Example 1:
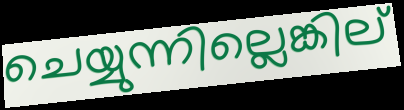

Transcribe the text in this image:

ചെയ്യുന്നില്ലെങ്കില്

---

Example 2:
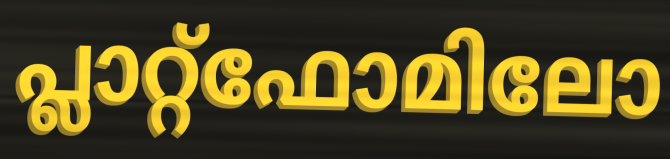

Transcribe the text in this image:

പ്ലാറ്റ്ഫോമിലോ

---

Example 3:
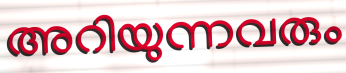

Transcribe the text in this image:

അറിയുന്നവരും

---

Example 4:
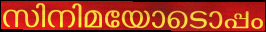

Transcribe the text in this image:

സിനിമയോടൊപ്പം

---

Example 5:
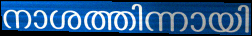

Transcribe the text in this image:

നാശത്തിന്നായി